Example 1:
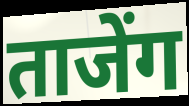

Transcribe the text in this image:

ताजेंग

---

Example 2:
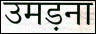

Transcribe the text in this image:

उमड़ना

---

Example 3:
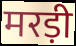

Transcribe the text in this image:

मरड़ी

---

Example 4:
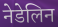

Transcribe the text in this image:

नेडेलिन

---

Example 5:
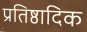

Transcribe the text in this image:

प्रतिष्ठादिक